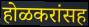
होळकरांसह